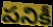
పనికీ